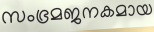
സംഭ്രമജനകമായ